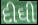
દીઘી